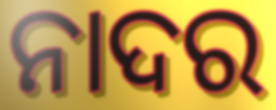
ନାଦର